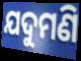
ଯଦୁମଣି